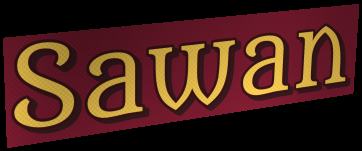
Sawan